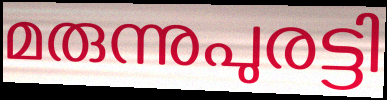
മരുന്നുപുരട്ടി